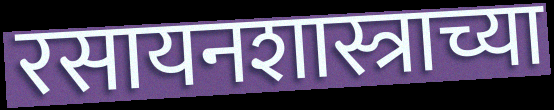
रसायनशास्त्राच्या